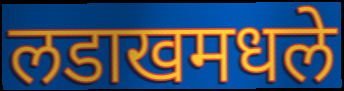
लडाखमधले